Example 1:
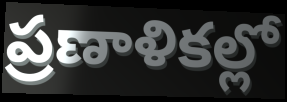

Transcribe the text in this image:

ప్రణాళికల్లో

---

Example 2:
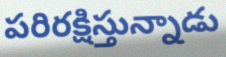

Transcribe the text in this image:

పరిరక్షిస్తున్నాడు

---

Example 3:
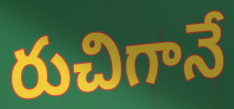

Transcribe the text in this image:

రుచిగానే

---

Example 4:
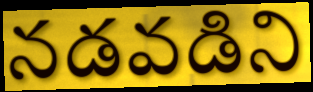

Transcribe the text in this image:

నడవడిని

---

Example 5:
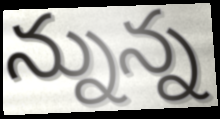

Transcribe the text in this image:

న్నున్న